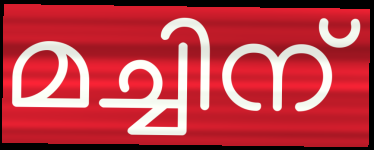
മച്ചിന്